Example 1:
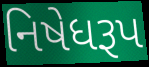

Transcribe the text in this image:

નિષેધરૂપ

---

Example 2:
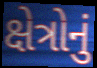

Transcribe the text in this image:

ક્ષેત્રોનું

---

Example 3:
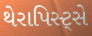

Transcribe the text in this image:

થેરાપિસ્ટ્સે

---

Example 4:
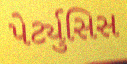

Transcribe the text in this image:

પેર્ટ્યુસિસ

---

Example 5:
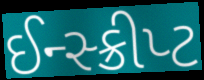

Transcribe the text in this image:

ઈન્સ્ક્રીપ્ટ